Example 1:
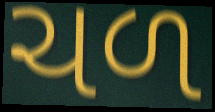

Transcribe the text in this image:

ચળ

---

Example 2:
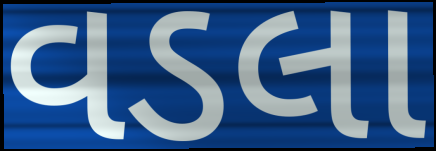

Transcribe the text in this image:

વડલા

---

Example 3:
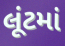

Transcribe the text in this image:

લૂંટમાં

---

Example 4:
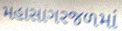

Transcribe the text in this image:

મહાસાગરજળમાં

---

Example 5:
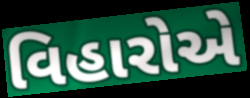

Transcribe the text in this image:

વિહારોએ